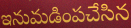
ఇనుమడింపచేసిన